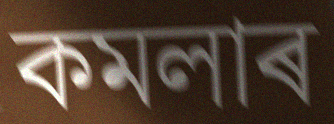
কমলাৰ